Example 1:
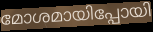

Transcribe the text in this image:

മോശമായിപ്പോയി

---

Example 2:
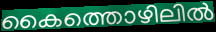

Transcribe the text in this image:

കൈത്തൊഴിലിൽ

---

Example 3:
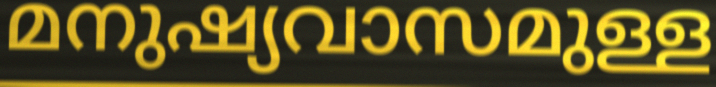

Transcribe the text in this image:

മനുഷ്യവാസമുള്ള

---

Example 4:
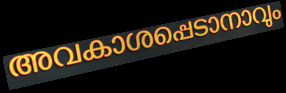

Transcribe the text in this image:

അവകാശപ്പെടാനാവും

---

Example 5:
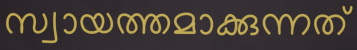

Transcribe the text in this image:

സ്വായത്തമാക്കുന്നത്